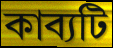
কাব্যটি